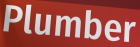
Plumber